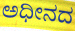
ಅಧೀನದ